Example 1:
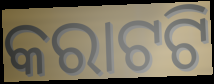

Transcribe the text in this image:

କରାଟଟି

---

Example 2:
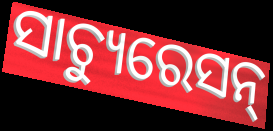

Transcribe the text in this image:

ସାଚ୍ୟୁରେସନ୍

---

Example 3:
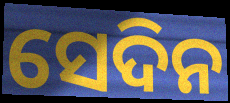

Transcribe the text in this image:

ସେଦିନ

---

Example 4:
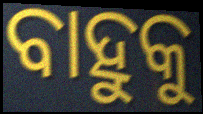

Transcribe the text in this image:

ବାହୁକୁ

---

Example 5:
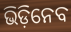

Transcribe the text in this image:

ଭିଡ଼ିନେବ